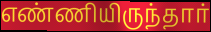
எண்ணியிருந்தார்